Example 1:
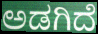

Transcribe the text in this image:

ಅಡಗಿದೆ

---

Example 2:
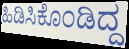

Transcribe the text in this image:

ಹಿಡಿಸಿಕೊಂಡಿದ್ದ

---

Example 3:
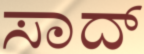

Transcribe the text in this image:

ಸಾದ್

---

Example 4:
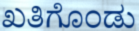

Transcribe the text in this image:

ಖತಿಗೊಂಡು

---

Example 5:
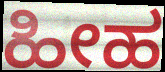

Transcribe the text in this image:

ಹೀಹ